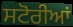
ਸਟੋਰੀਆਂ